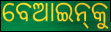
ବେଆଇନ୍‌କୁ